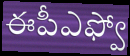
ఈపీఎఫ్వో